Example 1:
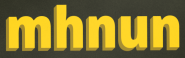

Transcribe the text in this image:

mhnun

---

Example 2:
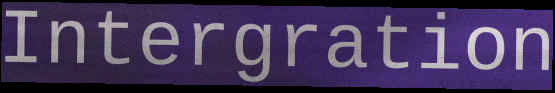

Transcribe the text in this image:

Intergration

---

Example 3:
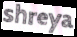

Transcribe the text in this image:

shreya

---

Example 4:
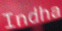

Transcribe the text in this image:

Indha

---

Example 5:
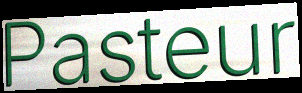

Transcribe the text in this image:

Pasteur